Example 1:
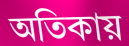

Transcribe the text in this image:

অতিকায়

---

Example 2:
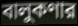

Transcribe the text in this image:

বালুকণার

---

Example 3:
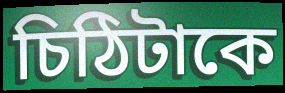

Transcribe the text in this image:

চিঠিটাকে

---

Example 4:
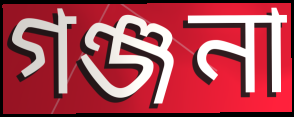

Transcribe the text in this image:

গঞ্জনা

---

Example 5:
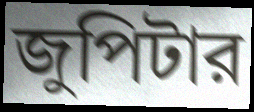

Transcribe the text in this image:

জুপিটার